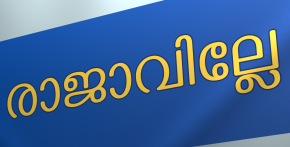
രാജാവില്ലേ